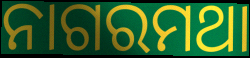
ନାଗରମଥା